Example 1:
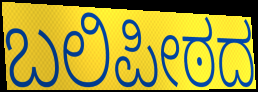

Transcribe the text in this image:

ಬಲಿಪೀಠದ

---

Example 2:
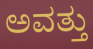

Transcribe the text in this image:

ಅವತ್ತು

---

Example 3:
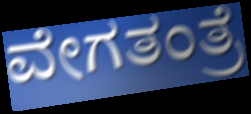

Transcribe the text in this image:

ವೇಗತಂತ್ರೆ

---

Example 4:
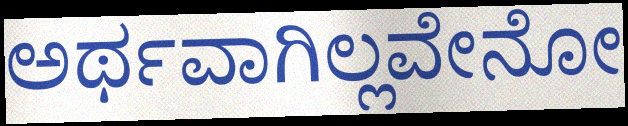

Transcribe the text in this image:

ಅರ್ಥವಾಗಿಲ್ಲವೇನೋ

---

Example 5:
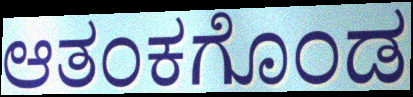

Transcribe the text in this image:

ಆತಂಕಗೊಂಡ